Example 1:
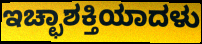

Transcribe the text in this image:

ಇಚ್ಛಾಶಕ್ತಿಯಾದಳು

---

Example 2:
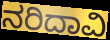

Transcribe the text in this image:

ನರಿದಾವಿ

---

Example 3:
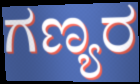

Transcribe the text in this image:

ಗಣ್ಯರ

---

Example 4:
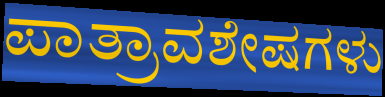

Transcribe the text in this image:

ಪಾತ್ರಾವಶೇಷಗಳು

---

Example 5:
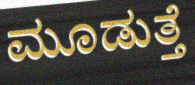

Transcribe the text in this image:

ಮೂಡುತ್ತೆ